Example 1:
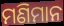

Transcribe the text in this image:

ମଣିମାନ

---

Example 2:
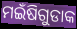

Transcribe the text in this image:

ମଇଁଷିଗୁଡାକ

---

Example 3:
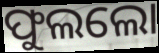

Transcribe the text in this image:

ଫୁଲଲୋ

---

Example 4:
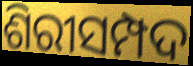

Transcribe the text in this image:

ଶିରୀସମ୍ପଦ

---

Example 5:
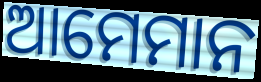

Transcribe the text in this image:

ଆମେମାନ